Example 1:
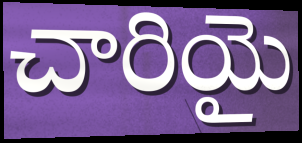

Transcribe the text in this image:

చారియై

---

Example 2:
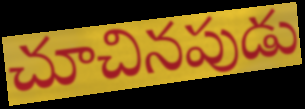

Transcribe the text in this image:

చూచినపుడు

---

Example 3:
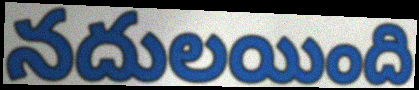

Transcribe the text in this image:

నదులయింది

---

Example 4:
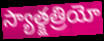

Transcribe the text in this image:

స్యాత్క్షత్రియో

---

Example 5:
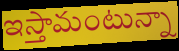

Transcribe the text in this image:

ఇస్తామంటున్నా